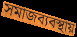
সমাজব্যবস্থায়